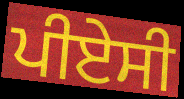
ਪੀਏਸੀ